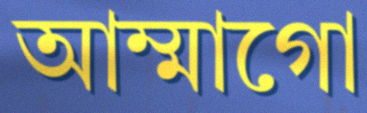
আম্মাগো